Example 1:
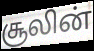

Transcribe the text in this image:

சூலின்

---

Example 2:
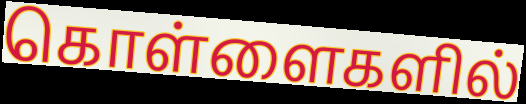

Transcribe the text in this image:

கொள்ளைகளில்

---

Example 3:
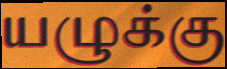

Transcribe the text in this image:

யழுக்கு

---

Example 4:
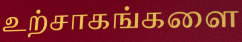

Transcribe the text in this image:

உற்சாகங்களை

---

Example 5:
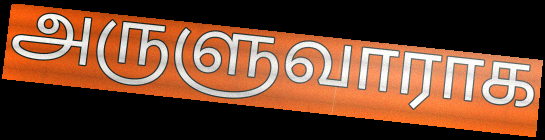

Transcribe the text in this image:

அருளுவாராக